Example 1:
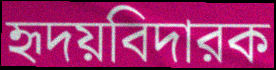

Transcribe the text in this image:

হৃদয়বিদারক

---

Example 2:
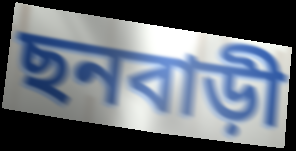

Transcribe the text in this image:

ছনবাড়ী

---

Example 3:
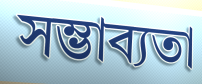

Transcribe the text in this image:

সম্ভাব্যতা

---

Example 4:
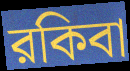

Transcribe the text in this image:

রকিবা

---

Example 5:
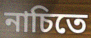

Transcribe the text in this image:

নাচিতে